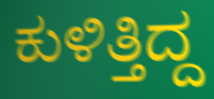
ಕುಳಿತ್ತಿದ್ದ